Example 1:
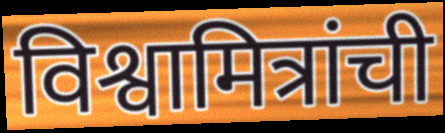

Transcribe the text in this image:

विश्वामित्रांची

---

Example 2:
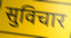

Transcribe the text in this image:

सुविचार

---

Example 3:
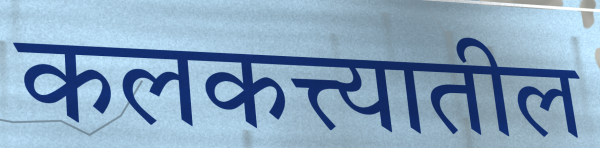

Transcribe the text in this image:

कलकत्त्यातील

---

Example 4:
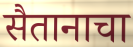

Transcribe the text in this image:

सैतानाचा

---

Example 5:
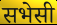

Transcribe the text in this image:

सभेसी